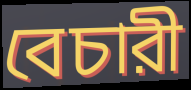
বেচারী